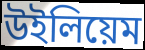
উইলিয়েম